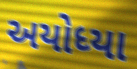
અયોધ્યા